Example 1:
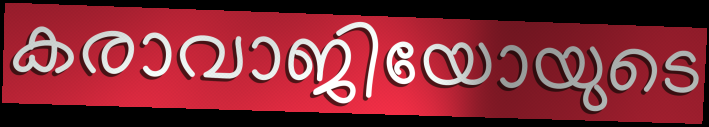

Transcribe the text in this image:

കരാവാജിയോയുടെ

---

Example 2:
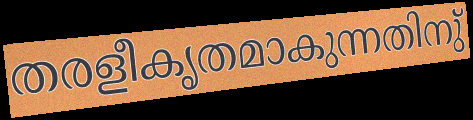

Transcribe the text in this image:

തരളീകൃതമാകുന്നതിനു്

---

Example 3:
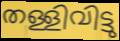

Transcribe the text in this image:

തള്ളിവിട്ടു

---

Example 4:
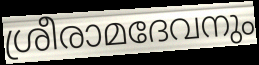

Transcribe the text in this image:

ശ്രീരാമദേവനും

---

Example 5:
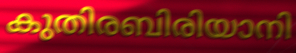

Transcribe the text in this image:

കുതിരബിരിയാനി